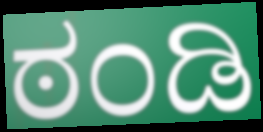
ಠಂಡಿ